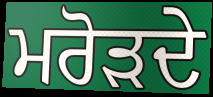
ਮਰੋੜਦੇ